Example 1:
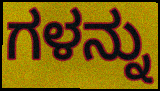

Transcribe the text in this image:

ಗಳನ್ನು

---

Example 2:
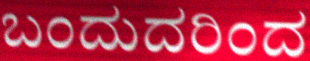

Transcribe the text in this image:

ಬಂದುದರಿಂದ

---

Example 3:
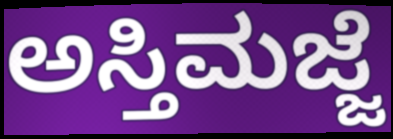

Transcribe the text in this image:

ಅಸ್ತಿಮಜ್ಜೆ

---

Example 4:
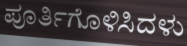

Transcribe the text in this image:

ಪೂರ್ತಿಗೊಳಿಸಿದಳು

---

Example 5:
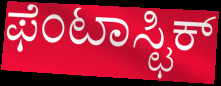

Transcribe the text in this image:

ಫೆಂಟಾಸ್ಟಿಕ್